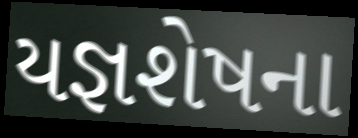
યજ્ઞશેષના